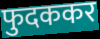
फुदककर